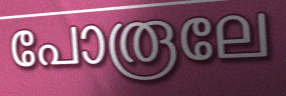
പോരൂലേ